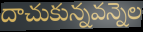
దాచుకున్నవన్నెల